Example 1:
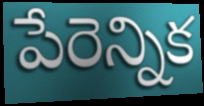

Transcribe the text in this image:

పేరెన్నిక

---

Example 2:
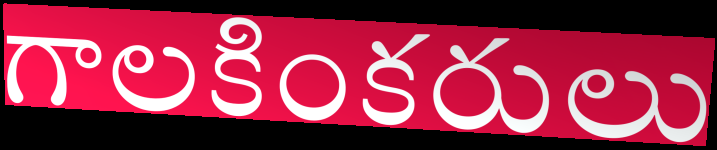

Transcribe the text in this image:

గాలకింకరులు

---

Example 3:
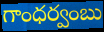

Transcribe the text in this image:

గాంధర్వంబు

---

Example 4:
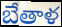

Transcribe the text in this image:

బేతాళ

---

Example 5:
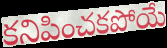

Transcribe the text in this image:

కనిపించకపోయే